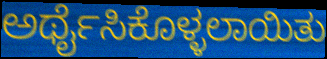
ಅರ್ಥೈಸಿಕೊಳ್ಳಲಾಯಿತು